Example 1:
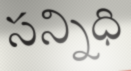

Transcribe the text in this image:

సన్నిధి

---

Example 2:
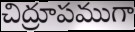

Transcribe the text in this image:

చిద్రూపముగా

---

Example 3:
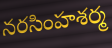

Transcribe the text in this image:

నరసింహశర్మ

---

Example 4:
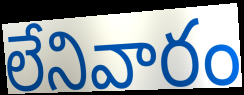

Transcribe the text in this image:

లేనివారం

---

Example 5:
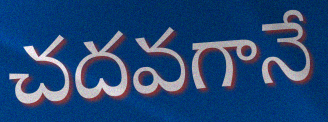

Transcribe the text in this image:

చదవగానే